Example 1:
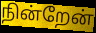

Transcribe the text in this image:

நின்றேன்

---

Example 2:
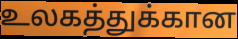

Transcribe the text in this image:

உலகத்துக்கான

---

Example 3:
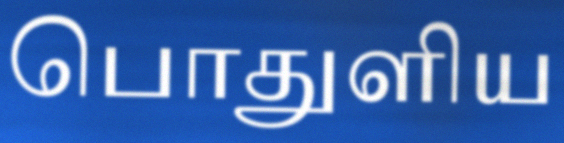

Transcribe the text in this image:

பொதுளிய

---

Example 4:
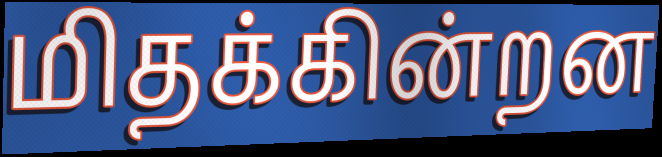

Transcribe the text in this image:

மிதக்கின்றன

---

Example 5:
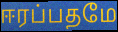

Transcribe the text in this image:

ஈரப்பதமே